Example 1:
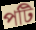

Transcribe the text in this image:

পটি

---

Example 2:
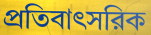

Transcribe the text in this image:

প্রতিবাৎসরিক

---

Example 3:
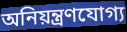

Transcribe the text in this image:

অনিয়ন্ত্রণযোগ্য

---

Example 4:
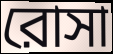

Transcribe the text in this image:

রোসা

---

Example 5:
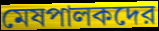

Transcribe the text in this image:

মেষপালকদের